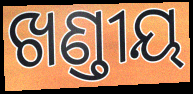
ଖଣ୍ଡୀୟ